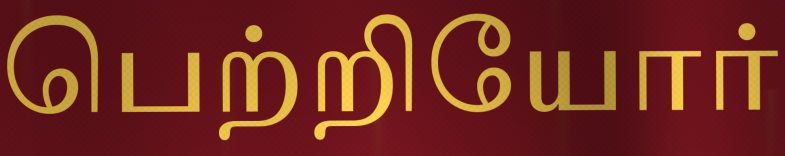
பெற்றியோர்